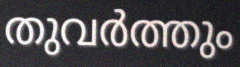
തുവർത്തും